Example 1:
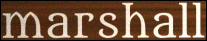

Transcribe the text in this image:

marshall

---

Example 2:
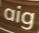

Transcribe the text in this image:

aig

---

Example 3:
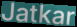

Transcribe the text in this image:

Jatkar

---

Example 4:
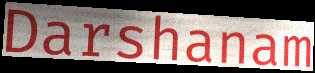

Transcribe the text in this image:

Darshanam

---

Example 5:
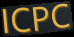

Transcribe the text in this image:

ICPC